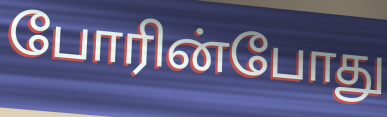
போரின்போது